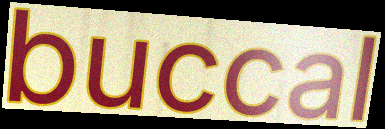
buccal